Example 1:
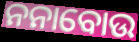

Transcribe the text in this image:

ନନାବୋଉ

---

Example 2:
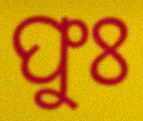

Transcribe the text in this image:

ଫୁଃ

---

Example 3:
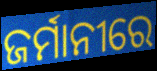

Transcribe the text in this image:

ଜର୍ମାନୀରେ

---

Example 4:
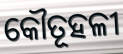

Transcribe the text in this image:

କୌତୂହଳୀ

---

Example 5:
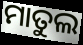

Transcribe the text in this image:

ମାତୁଲ